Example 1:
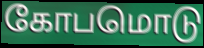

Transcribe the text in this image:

கோபமொடு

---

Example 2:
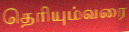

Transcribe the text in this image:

தெரியும்வரை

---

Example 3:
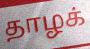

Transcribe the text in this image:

தாழக்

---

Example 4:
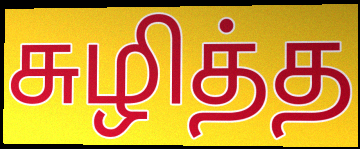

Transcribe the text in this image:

சுழித்த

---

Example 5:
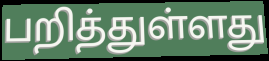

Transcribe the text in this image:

பறித்துள்ளது